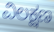
ವಿಲಕ್ಷಣ